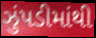
ઝુંપડીમાંથી